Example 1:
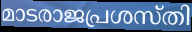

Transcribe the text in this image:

മാടരാജപ്രശസ്തി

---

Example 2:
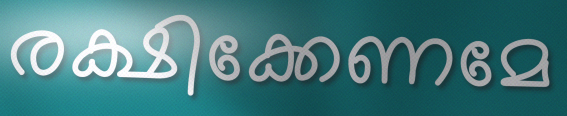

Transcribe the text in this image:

രക്ഷിക്കേണമേ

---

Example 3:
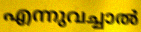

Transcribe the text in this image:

എന്നുവച്ചാൽ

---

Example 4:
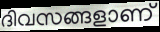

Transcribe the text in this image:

ദിവസങ്ങളാണ്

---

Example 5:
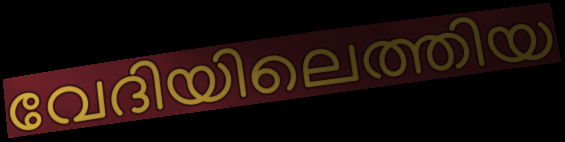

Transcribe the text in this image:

വേദിയിലെത്തിയ